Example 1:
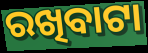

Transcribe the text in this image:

ରଖିବାଟା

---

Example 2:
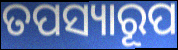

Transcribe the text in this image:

ତପସ୍ୟାରୂପ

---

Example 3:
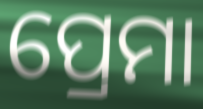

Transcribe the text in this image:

ପ୍ରେମା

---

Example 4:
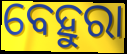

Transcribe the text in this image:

ବେହୁରା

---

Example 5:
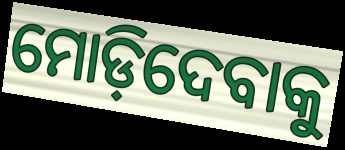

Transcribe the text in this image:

ମୋଡ଼ିଦେବାକୁ